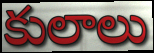
కులాలు